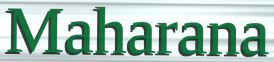
Maharana